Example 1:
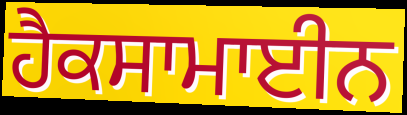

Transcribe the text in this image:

ਹੈਕਸਾਮਾਈਨ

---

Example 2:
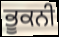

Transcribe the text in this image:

ਭੂਕਨੀ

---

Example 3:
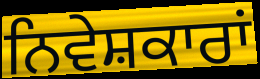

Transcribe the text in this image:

ਨਿਵੇਸ਼ਕਾਰਾਂ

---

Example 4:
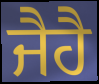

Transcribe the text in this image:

ਜੈਹੈ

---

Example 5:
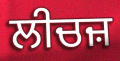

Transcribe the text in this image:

ਲੀਚਜ਼